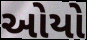
ઓયો